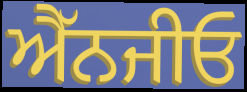
ਐੱਨਜੀਓ